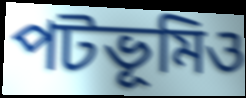
পটভূমিও